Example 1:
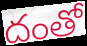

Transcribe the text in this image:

దంతో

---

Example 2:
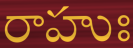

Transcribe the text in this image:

రాహుః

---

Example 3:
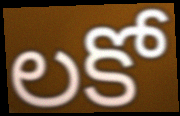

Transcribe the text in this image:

లకో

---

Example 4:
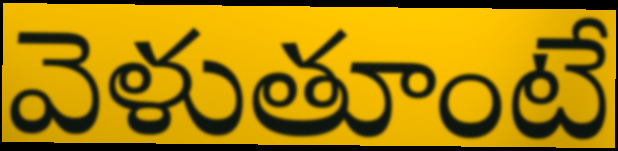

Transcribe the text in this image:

వెళుతూంటే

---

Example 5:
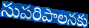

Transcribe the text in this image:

సుపరిపాలనకు